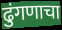
ढुंगणाचा